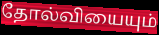
தோல்வியையும்